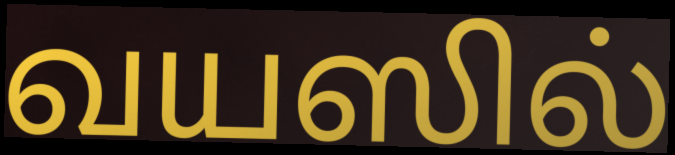
வயஸில்